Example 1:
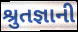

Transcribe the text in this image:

શ્રુતજ્ઞાની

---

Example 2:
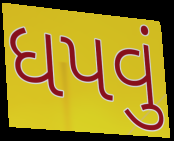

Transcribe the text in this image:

ધપવું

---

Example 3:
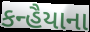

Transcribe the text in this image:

કન્હૈયાના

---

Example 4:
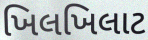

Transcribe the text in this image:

ખિલખિલાટ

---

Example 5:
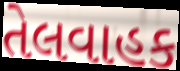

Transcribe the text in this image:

તેલવાહક